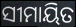
ସୀମାୟିତ